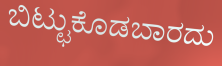
ಬಿಟ್ಟುಕೊಡಬಾರದು